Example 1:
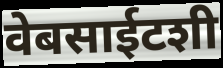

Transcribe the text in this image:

वेबसाईटशी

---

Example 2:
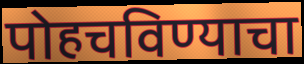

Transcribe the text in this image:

पोहचविण्याचा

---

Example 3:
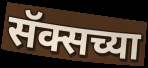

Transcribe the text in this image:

सॅक्सच्या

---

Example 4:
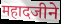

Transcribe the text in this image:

महादजीने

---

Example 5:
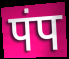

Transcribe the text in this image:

पंप